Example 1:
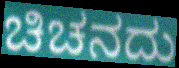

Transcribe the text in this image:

ಚಿಚನದು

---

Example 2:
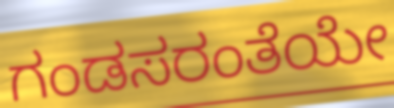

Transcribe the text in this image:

ಗಂಡಸರಂತೆಯೇ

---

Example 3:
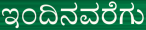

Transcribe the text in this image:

ಇಂದಿನವರೆಗು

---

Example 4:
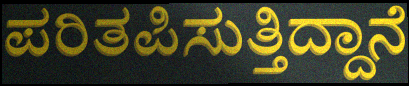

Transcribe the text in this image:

ಪರಿತಪಿಸುತ್ತಿದ್ದಾನೆ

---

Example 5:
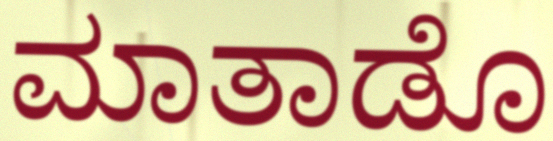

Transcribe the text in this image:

ಮಾತಾಡೊ